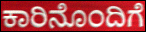
ಕಾರಿನೊಂದಿಗೆ